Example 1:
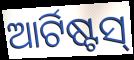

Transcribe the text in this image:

ଆର୍ଟିଷ୍ଟସ୍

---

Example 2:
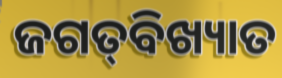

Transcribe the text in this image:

ଜଗତ୍‌ବିଖ୍ୟାତ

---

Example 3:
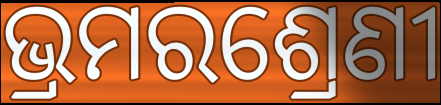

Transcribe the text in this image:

ଭ୍ରମରଶ୍ରେଣୀ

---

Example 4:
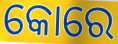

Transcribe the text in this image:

କୋରେ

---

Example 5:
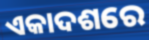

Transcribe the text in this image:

ଏକାଦଶରେ